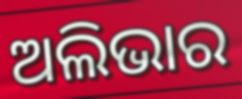
ଅଲିଭାର